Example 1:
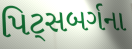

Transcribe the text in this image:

પિટ્સબર્ગના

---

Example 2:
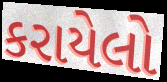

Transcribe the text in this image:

કરાયેલો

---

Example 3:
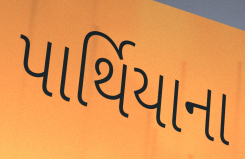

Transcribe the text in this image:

પાર્થિયાના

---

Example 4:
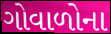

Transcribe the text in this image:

ગોવાળોના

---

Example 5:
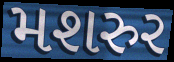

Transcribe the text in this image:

મશરુર